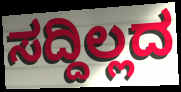
ಸದ್ದಿಲ್ಲದ